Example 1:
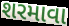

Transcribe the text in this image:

શરમાવા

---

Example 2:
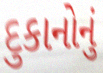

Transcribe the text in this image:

દુકાનોનું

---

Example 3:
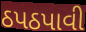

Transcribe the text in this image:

ઠપઠપાવી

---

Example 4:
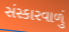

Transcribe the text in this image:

સંસ્કારવાળું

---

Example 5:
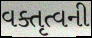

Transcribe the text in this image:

વક્તૃત્વની